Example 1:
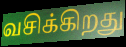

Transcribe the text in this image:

வசிக்கிறது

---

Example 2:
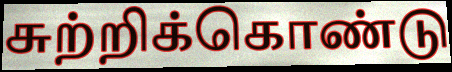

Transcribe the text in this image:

சுற்றிக்கொண்டு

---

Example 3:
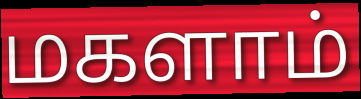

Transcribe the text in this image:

மகளாம்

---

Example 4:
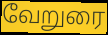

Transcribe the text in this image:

வேறுரை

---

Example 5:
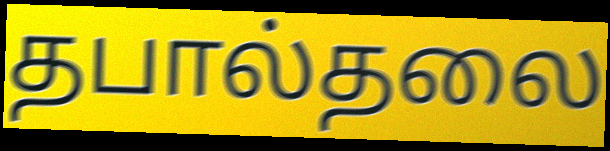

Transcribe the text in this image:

தபால்தலை